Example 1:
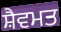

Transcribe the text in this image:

ਸ਼ੈਵਮਤ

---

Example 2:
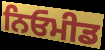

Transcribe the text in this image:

ਨਿਓਮੀਡ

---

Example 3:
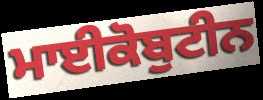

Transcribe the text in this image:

ਮਾਈਕੋਬੁਟੀਨ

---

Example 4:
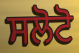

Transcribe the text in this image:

ਸਲੋਟੋ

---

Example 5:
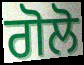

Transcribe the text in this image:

ਗੋਲੋ